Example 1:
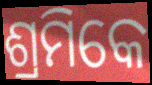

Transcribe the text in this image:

ଶ୍ରମିକେ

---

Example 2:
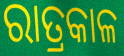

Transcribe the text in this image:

ରାତ୍ରକାଳ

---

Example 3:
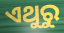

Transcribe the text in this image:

ଏଥୁରୁ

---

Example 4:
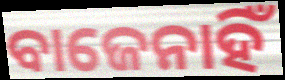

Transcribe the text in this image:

ବାଜେନାହିଁ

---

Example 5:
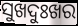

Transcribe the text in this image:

ସୁଖଦୁଃଖର